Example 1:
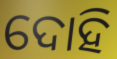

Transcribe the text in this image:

ଦୋହି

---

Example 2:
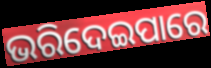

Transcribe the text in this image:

ଭରିଦେଇପାରେ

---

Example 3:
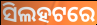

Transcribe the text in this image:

ସିଲହଟରେ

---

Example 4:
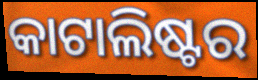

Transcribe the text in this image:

କାଟାଲିଷ୍ଟର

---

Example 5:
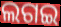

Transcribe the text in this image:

ଲଗଇ